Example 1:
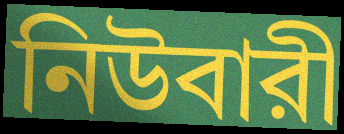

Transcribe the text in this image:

নিউবারী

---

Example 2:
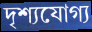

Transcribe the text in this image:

দৃশ্যযোগ্য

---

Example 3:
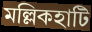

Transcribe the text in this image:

মল্লিকহাটি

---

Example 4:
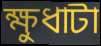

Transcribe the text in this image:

ক্ষুধাটা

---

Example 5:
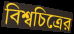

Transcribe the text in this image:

বিশ্বচিত্রের